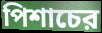
পিশাচের